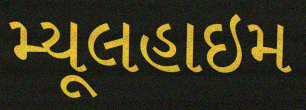
મ્યૂલહાઇમ